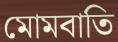
মোমবাতি